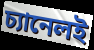
চ্যানেলই